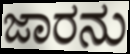
ಜಾರನು